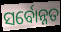
ସର୍ବୋନ୍ନତ